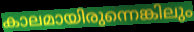
കാലമായിരുന്നെങ്കിലും